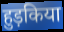
हुड़किया